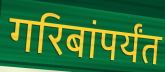
गरिबांपर्यंत